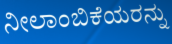
ನೀಲಾಂಬಿಕೆಯರನ್ನು